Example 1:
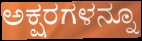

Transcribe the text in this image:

ಅಕ್ಷರಗಳನ್ನೂ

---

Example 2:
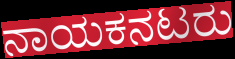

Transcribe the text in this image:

ನಾಯಕನಟರು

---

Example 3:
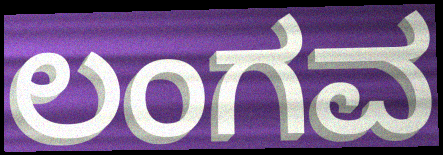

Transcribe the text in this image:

ಲಂಗವ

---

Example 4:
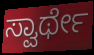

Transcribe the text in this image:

ಸ್ವಾರ್ಥೇ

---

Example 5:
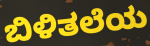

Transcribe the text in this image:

ಬಿಳಿತಲೆಯ